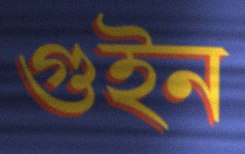
গুইন